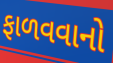
ફાળવવાનો